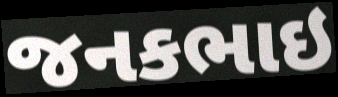
જનકભાઇ